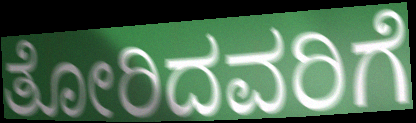
ತೋರಿದವರಿಗೆ